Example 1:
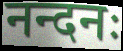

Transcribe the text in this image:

नन्दनः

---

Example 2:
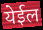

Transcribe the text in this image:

येईल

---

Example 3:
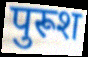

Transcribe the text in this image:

पुरूश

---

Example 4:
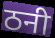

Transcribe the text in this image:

ठनी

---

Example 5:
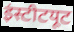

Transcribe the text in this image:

इंस्‍टीटयूट